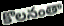
కొలనంతా